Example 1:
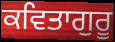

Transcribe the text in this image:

ਕਵਿਤਾਗੁਰੂ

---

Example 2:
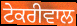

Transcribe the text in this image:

ਟੇਕਰੀਵਾਲ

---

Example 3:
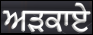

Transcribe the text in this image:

ਅੜਕਾਏ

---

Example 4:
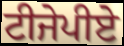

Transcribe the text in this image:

ਟੀਜੇਪੀਏ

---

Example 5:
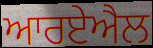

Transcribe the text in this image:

ਆਰਏਐਲ